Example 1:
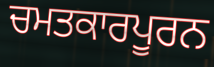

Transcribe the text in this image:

ਚਮਤਕਾਰਪੂਰਨ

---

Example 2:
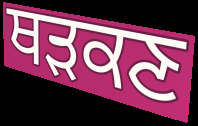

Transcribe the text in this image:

ਥੜਕਣ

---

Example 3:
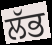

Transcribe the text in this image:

ਲੱਭ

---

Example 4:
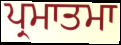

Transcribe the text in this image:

ਪ੍ਰਮਾਤਮਾ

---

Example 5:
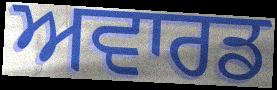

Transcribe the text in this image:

ਅਵਾਰਡ